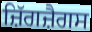
ਜ਼ਿੱਗਜ਼ੈਗਸ